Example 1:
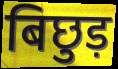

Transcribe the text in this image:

बिछुड़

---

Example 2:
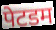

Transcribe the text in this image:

पेटडम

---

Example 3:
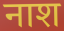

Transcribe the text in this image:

नाश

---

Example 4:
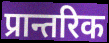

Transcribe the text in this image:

प्रान्तरिक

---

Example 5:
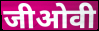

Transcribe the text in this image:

जीओवी